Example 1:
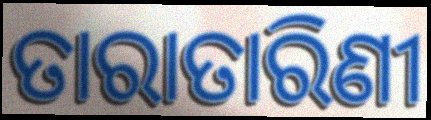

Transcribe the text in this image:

ତାରାତାରିଣୀ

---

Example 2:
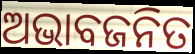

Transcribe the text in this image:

ଅଭାବଜନିତ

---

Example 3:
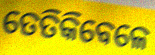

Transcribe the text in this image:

ତେତିକିବେଳେ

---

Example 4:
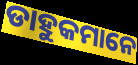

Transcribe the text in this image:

ଡାହୁକମାନେ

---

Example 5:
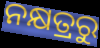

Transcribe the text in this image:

ନକ୍ଷତ୍ରରୁ